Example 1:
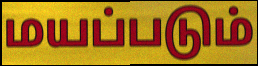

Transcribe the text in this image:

மயப்படும்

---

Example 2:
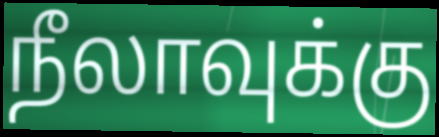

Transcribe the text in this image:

நீலாவுக்கு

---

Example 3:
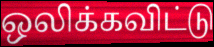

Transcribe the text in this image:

ஒலிக்கவிட்டு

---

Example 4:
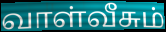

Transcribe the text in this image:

வாள்வீசும்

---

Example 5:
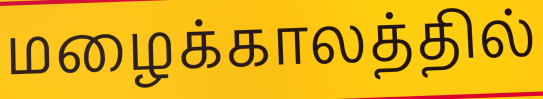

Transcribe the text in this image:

மழைக்காலத்தில்